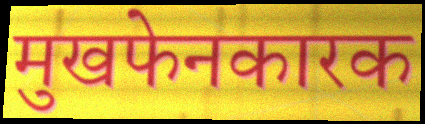
मुखफेनकारक